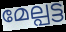
മേല്പട്ട